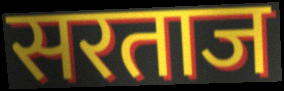
सरताज